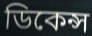
ডিকেন্স